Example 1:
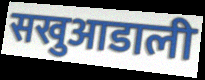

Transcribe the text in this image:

सखुआडाली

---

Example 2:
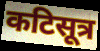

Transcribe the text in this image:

कटिसूत्र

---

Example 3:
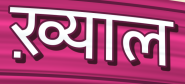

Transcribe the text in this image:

ख़्याल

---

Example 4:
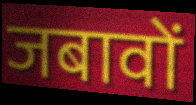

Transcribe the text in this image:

जबावों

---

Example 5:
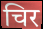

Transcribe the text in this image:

चिर